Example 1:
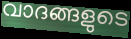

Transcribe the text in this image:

വാദങ്ങളുടെ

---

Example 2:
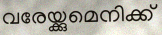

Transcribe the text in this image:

വരേയ്ക്കുമെനിക്ക്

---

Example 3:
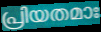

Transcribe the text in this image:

പ്രിയതമാഃ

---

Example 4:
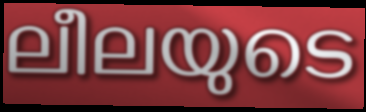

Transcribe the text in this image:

ലീലയുടെ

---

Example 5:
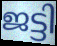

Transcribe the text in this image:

ജട്ടി